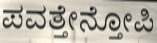
ಪವತ್ತೇನ್ತೋಪಿ